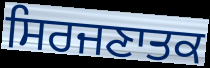
ਸਿਰਜਣਾਤਕ